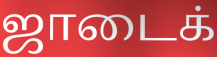
ஜாடைக்